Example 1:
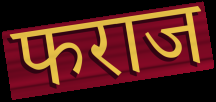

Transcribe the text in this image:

फराज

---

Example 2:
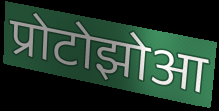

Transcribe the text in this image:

प्रोटोझोआ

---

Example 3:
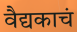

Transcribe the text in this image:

वैद्यकाचं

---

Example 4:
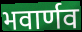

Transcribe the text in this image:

भवार्णव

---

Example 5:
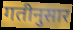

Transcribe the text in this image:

गतीनुसार